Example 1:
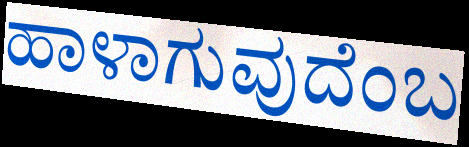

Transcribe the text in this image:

ಹಾಳಾಗುವುದೆಂಬ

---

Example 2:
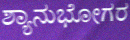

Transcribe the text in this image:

ಶ್ಯಾನುಭೋಗರ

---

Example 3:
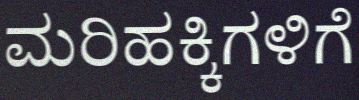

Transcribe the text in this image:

ಮರಿಹಕ್ಕಿಗಳಿಗೆ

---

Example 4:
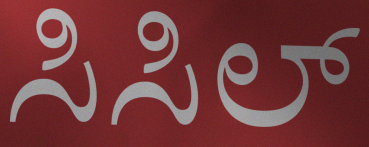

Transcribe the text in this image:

ಸಿಸಿಲ್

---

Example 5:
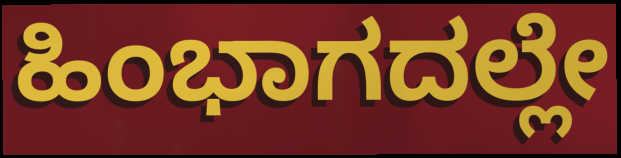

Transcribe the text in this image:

ಹಿಂಭಾಗದಲ್ಲೇ